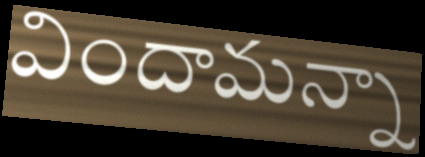
విందామన్నా